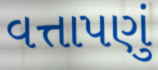
વત્તાપણું